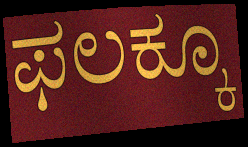
ಫಲಕ್ಕೂ